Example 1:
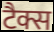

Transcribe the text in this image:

टैक्स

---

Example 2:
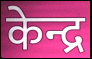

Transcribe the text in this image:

केन्‍द्र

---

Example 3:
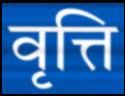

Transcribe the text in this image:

वृत्ति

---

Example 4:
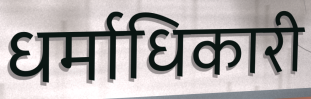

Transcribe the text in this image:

धर्माधिकारी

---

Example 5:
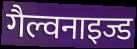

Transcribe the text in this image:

गैल्वनाइज्ड